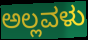
ಅಲ್ಲವಳು